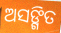
ଅସଙ୍ଗିତ